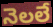
నెలలే